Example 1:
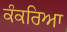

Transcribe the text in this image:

ਕੰਕਰਿਆ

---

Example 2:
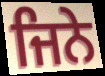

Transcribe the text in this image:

ਜਿਨੇ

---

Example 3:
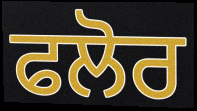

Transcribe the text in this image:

ਫਲੋਰ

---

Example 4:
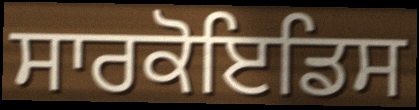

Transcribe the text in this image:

ਸਾਰਕੋਇਡਿਸ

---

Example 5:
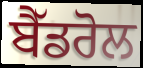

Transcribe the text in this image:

ਬੈੱਡਰੋਲ